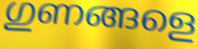
ഗുണങ്ങളെ